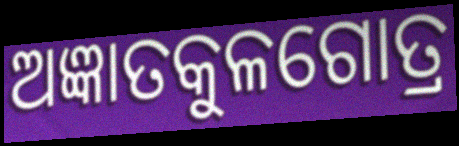
ଅଜ୍ଞାତକୁଳଗୋତ୍ର